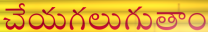
చేయగలుగుతాం